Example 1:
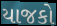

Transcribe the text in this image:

યાજકો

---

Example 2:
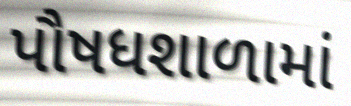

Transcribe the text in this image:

પૌષધશાળામાં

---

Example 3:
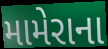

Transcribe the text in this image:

મામેરાના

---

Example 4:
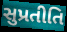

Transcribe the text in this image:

સુપ્રતીતિ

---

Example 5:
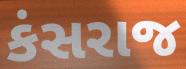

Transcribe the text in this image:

કંસરાજ